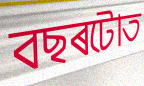
বছৰটোত